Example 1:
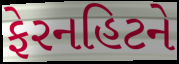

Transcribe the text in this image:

ફેરનહિટને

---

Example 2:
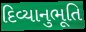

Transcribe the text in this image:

દિવ્યાનુભૂતિ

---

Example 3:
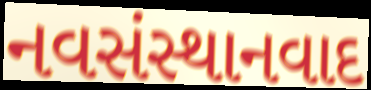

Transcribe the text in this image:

નવસંસ્થાનવાદ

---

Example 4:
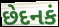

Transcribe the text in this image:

છેદનકં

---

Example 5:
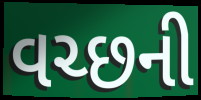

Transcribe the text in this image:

વચ્છની